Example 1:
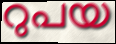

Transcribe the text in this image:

റുപയ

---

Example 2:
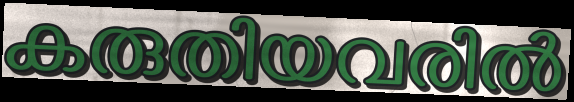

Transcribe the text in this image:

കരുതിയവരിൽ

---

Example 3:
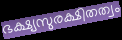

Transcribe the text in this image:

ഭക്ഷ്യസുരക്ഷിതത്വം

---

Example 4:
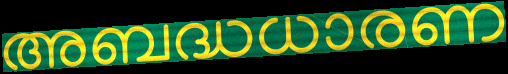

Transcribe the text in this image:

അബദ്ധധാരണ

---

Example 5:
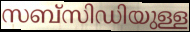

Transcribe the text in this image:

സബ്സിഡിയുള്ള